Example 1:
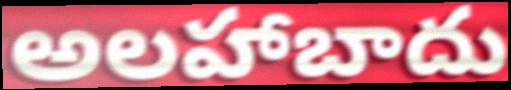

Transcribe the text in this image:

అలహాబాదు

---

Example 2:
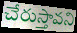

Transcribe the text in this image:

చేరుస్తావని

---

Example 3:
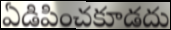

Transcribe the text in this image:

ఏడిపించకూడదు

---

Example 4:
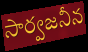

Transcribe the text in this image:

సార్వజనీన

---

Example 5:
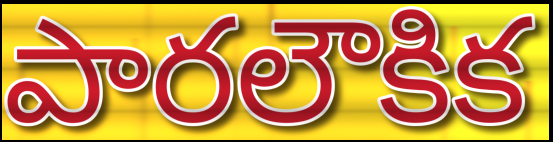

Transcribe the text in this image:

పారలౌకిక